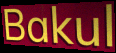
Bakul